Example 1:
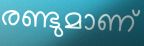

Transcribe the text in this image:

രണ്ടുമാണ്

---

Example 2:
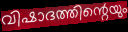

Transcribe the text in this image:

വിഷാദത്തിന്റെയും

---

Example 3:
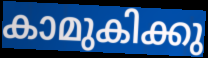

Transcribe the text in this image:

കാമുകിക്കു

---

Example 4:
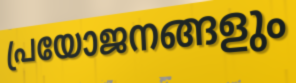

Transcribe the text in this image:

പ്രയോജനങ്ങളും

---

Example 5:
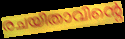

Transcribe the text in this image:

രചയിതാവിന്റെ